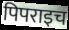
पिपराइच